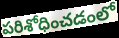
పరిశోధించడంలో